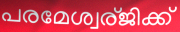
പരമേശ്വര്ജിക്ക്